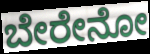
ಬೇರೇನೋ